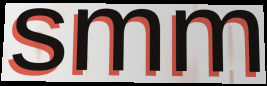
smm